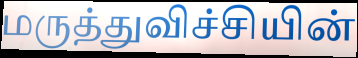
மருத்துவிச்சியின்